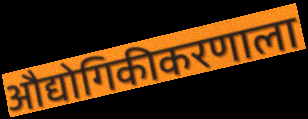
औद्योगिकीकरणाला